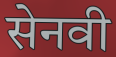
सेनवी